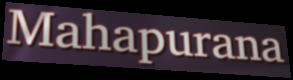
Mahapurana